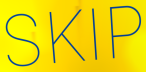
SKIP